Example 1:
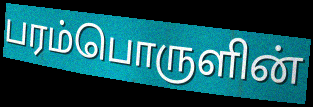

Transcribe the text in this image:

பரம்பொருளின்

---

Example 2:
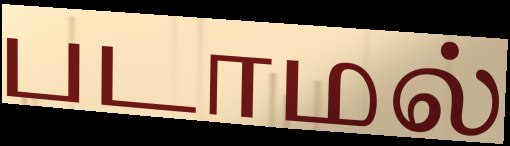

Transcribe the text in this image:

படாமல்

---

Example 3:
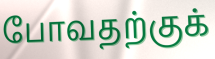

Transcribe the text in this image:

போவதற்குக்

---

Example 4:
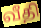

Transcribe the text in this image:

வீதி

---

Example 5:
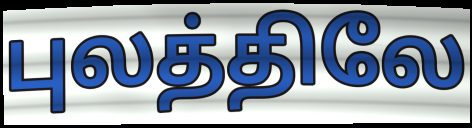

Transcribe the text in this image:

புலத்திலே